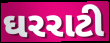
ઘરરાટી